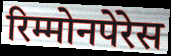
रिम्मोनपेरेस